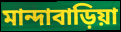
মান্দাবাড়িয়া